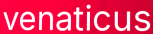
venaticus